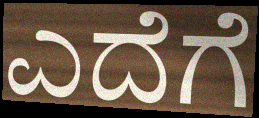
ಎದೆಗೆ